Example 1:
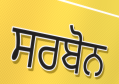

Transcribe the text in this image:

ਸਰਬੋਨ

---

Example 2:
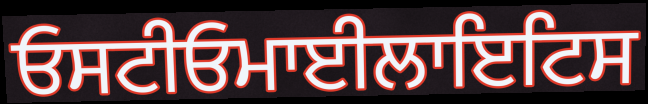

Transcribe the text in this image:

ਓਸਟੀਓਮਾਈਲਾਇਟਿਸ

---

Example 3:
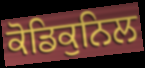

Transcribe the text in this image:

ਕੋਡਿਕੁਨਿਲ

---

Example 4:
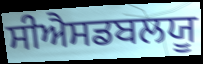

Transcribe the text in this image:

ਸੀਐਸਡਬਲਯੂ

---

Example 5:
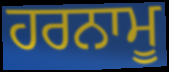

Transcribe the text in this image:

ਹਰਨਾਮੂ